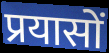
प्रयासों